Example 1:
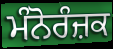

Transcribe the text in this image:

ਮੰਨੋਰੰਜ਼ਕ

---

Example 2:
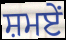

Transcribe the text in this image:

ਸ਼ਮਏਂ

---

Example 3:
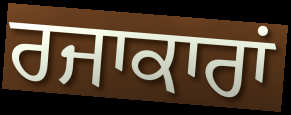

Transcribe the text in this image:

ਰਜਾਕਾਰਾਂ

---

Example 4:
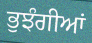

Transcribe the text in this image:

ਭੁਝੰਗੀਆਂ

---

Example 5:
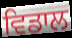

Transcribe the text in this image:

ਵਿਡਾਲ